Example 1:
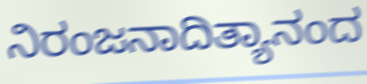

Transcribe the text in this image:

ನಿರಂಜನಾದಿತ್ಯಾನಂದ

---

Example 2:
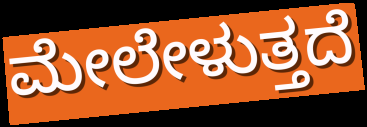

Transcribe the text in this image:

ಮೇಲೇಳುತ್ತದೆ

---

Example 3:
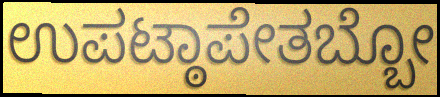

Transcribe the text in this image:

ಉಪಟ್ಠಾಪೇತಬ್ಬೋ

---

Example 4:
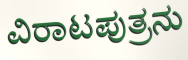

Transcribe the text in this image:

ವಿರಾಟಪುತ್ರನು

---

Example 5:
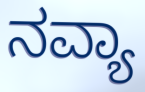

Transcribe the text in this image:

ನವ್ಯಾ